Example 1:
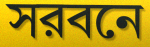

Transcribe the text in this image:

সরবনে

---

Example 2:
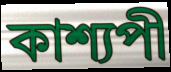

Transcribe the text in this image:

কাশ্যপী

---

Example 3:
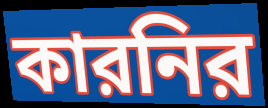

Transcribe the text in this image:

কারনির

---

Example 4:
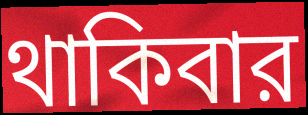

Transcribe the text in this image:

থাকিবার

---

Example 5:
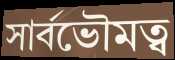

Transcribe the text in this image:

সার্বভৌমত্ব